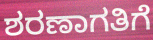
ಶರಣಾಗತಿಗೆ